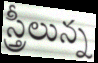
స్త్రీలున్న